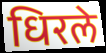
धिरले